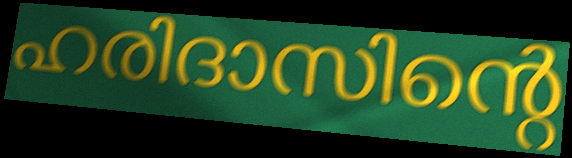
ഹരിദാസിന്റെ